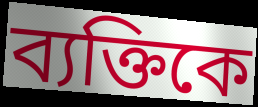
ব্যক্তিকে